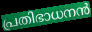
പ്രതിഭാധനൻ